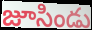
జూసిండు